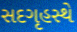
સદગૃહસ્થે